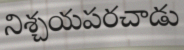
నిశ్చయపరచాడు